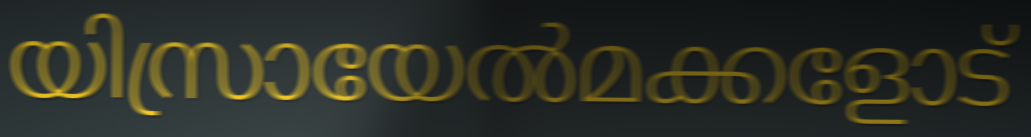
യിസ്രായേൽമക്കളോട്